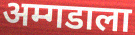
अम्गडाला